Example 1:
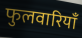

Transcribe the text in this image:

फुलवारियाँ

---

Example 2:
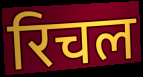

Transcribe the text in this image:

रिचल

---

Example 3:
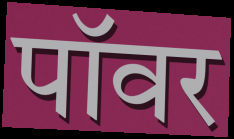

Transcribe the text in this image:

पॉवर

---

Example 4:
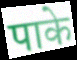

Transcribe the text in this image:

पाके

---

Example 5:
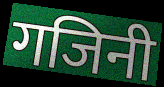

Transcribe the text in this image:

गजिनी